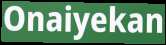
Onaiyekan